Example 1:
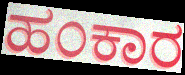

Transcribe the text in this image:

ಹಂಕಾರ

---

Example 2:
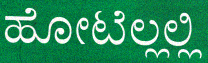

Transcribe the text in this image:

ಹೋಟೆಲ್ಲಲ್ಲಿ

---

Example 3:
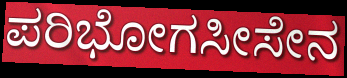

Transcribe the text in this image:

ಪರಿಭೋಗಸೀಸೇನ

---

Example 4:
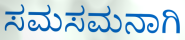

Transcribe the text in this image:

ಸಮಸಮನಾಗಿ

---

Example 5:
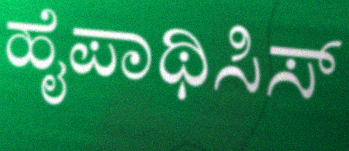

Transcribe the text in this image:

ಹೈಪಾಥಿಸಿಸ್